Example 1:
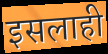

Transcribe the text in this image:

इसलाही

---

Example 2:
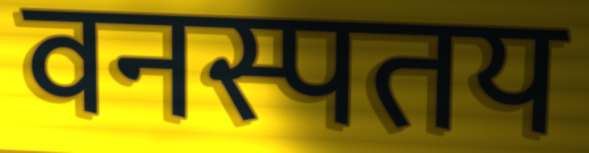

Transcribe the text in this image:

वनस्पतय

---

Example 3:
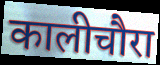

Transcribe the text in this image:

कालीचौरा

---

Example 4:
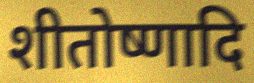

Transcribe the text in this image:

शीतोष्णादि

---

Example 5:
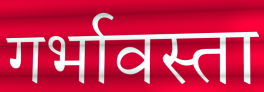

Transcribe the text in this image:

गर्भावस्ता